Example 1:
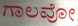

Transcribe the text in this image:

ಗಾಲವೋ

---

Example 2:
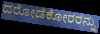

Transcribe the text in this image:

ದರೋಡೆಕೋರರನ್ನು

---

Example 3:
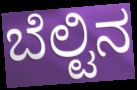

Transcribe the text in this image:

ಬೆಲ್ಟಿನ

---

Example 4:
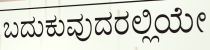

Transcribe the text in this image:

ಬದುಕುವುದರಲ್ಲಿಯೇ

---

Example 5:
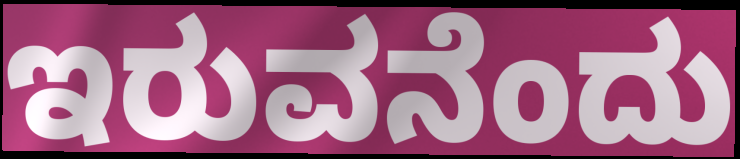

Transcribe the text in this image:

ಇರುವನೆಂದು